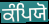
ਕੰਪਿਯੋ